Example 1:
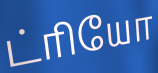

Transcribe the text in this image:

ட்ரியோ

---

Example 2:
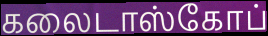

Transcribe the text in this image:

கலைடாஸ்கோப்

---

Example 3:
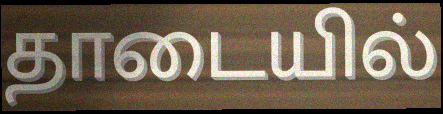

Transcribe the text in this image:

தாடையில்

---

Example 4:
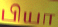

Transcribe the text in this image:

பியா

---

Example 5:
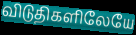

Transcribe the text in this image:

விடுதிகளிலேயே